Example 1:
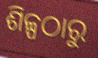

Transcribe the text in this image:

ଶିଳ୍ପଠାରୁ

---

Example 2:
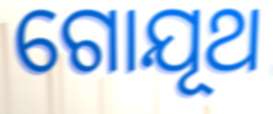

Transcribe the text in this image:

ଗୋଯୂଥ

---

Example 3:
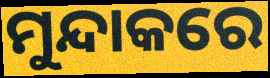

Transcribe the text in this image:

ମୁନ୍ଦାକରେ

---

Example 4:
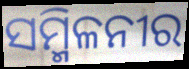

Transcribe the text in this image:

ସମ୍ମିଳନୀର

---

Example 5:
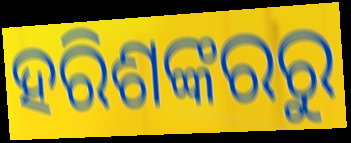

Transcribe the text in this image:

ହରିଶଙ୍କରରୁ